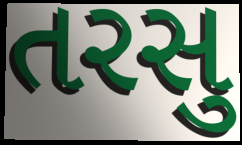
તરસુ